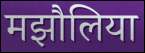
मझौलिया